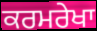
ਕਰਮਰੇਖਾ